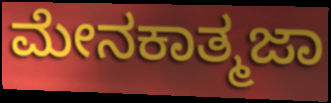
ಮೇನಕಾತ್ಮಜಾ